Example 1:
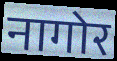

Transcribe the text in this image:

नागोर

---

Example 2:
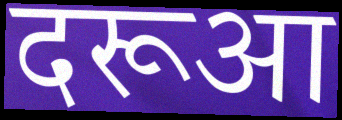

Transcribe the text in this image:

दरूआ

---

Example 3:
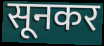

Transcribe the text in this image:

सूनकर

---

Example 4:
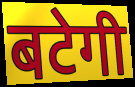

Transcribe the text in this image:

बटेगी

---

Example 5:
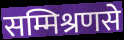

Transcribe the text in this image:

सम्मिश्रणसे